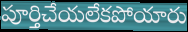
పూర్తిచేయలేకపోయారు